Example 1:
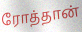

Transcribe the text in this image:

ரோத்தான்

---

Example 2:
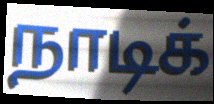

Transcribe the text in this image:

நாடிக்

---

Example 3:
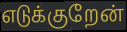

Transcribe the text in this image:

எடுக்குறேன்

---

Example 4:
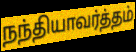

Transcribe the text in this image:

நந்தியாவர்த்தம்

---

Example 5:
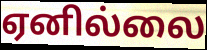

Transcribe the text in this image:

ஏனில்லை